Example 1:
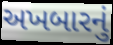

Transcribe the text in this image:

અખબારનું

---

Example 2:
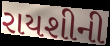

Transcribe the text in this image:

રાયશીની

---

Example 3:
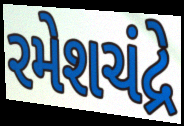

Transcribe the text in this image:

રમેશચંદ્રે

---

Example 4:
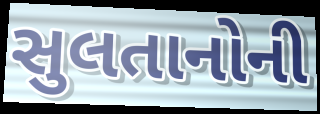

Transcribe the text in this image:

સુલતાનોની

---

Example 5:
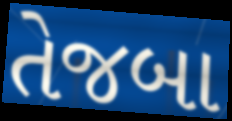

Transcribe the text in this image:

તેજબા